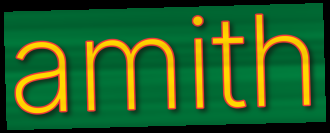
amith